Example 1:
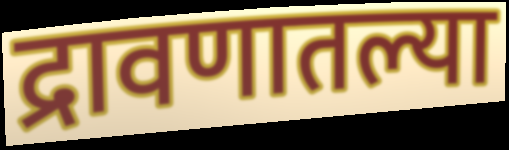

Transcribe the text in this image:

द्रावणातल्या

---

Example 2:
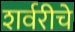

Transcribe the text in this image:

शर्वरीचे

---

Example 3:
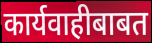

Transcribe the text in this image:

कार्यवाहीबाबत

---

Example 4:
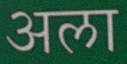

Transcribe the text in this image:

अला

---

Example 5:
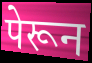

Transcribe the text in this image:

पेरून